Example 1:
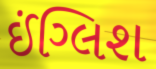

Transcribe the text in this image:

ઈંગ્લિશ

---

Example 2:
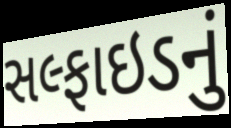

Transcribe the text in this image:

સલ્ફાઇડનું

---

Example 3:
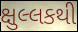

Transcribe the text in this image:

ક્ષુલ્લકથી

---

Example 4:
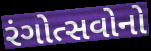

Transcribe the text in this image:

રંગોત્સવોનો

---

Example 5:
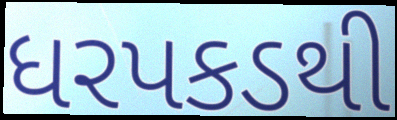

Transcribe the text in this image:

ધરપકડથી